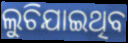
ଲୁଚିଯାଇଥିବ